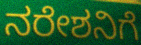
ನರೇಶನಿಗೆ